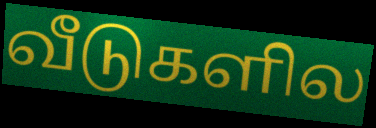
வீடுகளில